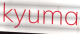
kyuma